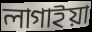
লাগাইয়া